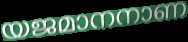
യജമാനനാണ